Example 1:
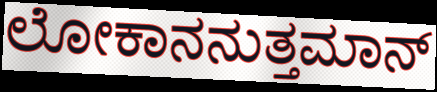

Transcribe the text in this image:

ಲೋಕಾನನುತ್ತಮಾನ್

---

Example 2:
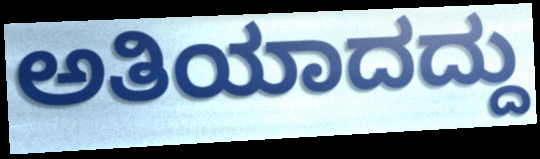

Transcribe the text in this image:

ಅತಿಯಾದದ್ದು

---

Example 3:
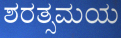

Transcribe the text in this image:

ಶರತ್ಸಮಯ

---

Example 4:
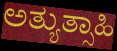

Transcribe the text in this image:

ಅತ್ಯುತ್ಸಾಹಿ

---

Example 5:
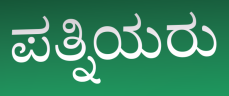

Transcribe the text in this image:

ಪತ್ನಿಯರು